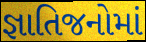
જ્ઞાતિજનોમાં